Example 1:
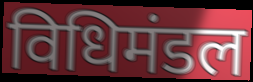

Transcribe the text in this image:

विधिमंडल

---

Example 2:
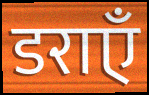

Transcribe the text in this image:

डराएँ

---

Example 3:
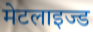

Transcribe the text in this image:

मेटलाइज्ड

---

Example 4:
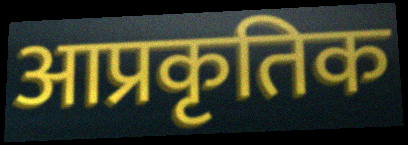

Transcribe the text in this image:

आप्रकृतिक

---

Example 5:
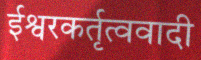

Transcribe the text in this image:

ईश्वरकर्तृत्ववादी